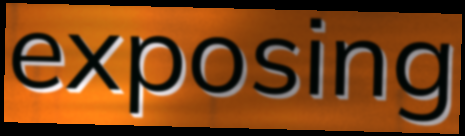
exposing